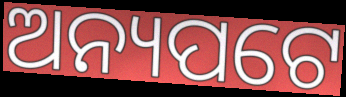
ଅନ୍ୟପଟେ